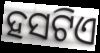
ହସଟିଏ